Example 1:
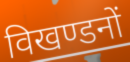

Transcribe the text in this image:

विखण्डनों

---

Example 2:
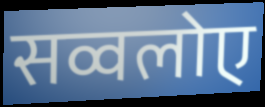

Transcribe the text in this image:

सव्वलोए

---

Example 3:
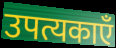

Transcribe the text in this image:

उपत्यकाएँ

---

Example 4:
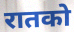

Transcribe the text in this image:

रातको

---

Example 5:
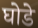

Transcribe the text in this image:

घोडे